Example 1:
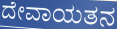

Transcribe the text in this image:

ದೇವಾಯತನ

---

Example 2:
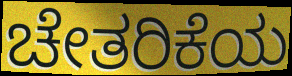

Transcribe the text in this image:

ಚೇತರಿಕೆಯ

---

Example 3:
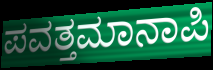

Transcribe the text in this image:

ಪವತ್ತಮಾನಾಪಿ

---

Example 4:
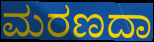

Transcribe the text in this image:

ಮರಣದಾ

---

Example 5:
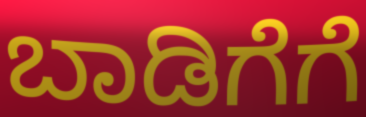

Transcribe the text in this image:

ಬಾಡಿಗೆಗೆ